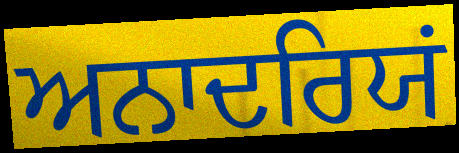
ਅਨਾਦਰਿਯਂ